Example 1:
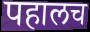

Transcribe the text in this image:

पहालच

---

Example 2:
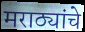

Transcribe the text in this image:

मराठ्यांचे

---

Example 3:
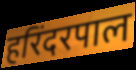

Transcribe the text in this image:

हरिंदरपाल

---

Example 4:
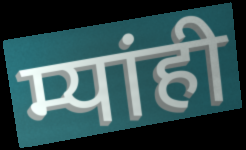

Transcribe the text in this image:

म्यांही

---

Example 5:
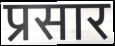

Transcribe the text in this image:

प्रसार